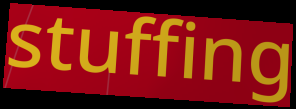
stuffing